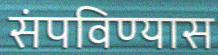
संपविण्यास